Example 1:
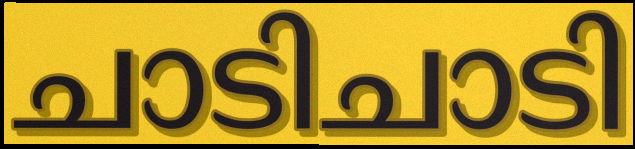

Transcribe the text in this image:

ചാടിചാടി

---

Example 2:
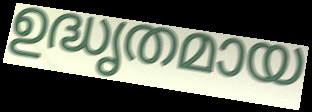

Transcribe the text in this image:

ഉദ്ധൃതമായ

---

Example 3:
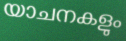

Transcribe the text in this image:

യാചനകളും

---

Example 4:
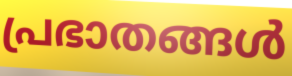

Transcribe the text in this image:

പ്രഭാതങ്ങൾ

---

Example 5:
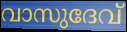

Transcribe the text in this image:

വാസുദേവ്